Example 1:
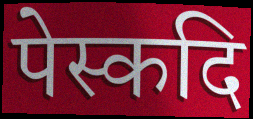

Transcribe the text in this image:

पेस्कदि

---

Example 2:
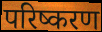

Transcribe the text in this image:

परिष्करण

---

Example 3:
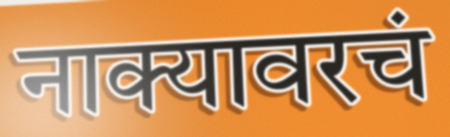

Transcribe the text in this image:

नाक्यावरचं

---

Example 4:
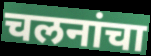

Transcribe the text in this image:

चलनांचा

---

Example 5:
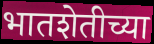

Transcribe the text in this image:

भातशेतीच्या